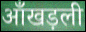
आँखड़ली